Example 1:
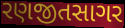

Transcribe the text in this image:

રણજીતસાગર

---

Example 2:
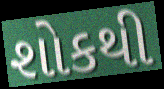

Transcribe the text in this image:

શોકથી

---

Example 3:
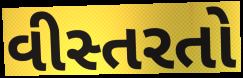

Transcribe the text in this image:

વીસ્તરતો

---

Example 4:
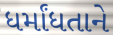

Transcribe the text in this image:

ધર્માંધતાને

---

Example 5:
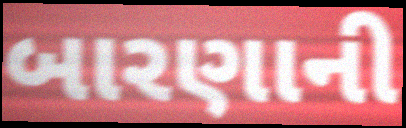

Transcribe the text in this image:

બારણાની